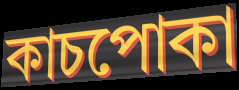
কাচপোকা